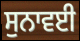
ਸੁਨਾਵਈ